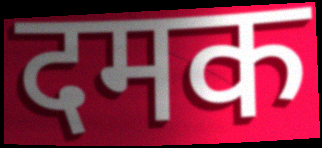
दमक